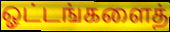
ஓட்டங்களைத்